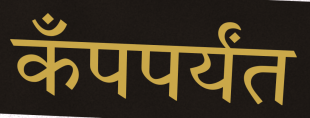
कँपपर्यंत